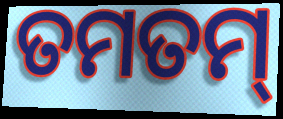
ତମତମ୍